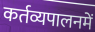
कर्तव्यपालनमें